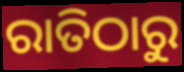
ରାତିଠାରୁ